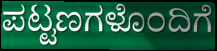
ಪಟ್ಟಣಗಳೊಂದಿಗೆ